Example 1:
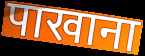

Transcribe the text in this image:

पाखाना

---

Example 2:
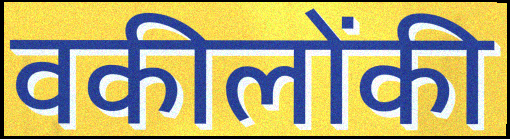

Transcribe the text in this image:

वकीलोंकी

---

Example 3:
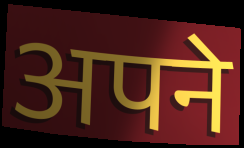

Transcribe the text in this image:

अपने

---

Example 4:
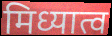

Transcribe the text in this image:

मिध्यात्व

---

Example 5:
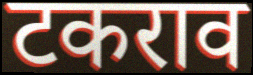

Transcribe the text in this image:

टकराव